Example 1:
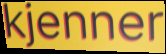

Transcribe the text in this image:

kjenner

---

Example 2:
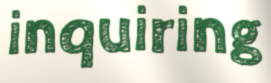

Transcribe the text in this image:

inquiring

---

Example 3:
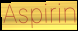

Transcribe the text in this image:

Aspirin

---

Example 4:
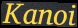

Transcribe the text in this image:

Kanoi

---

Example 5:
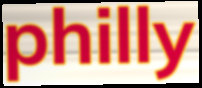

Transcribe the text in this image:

philly